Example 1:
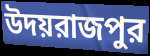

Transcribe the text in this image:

উদয়রাজপুর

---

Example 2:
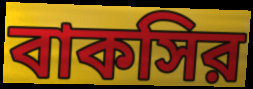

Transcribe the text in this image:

বাকসির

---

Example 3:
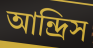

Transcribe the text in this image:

আন্দ্রিস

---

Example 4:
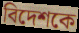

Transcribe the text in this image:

বিদেশকে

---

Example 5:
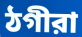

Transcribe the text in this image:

ঠগীরা